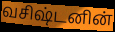
வசிஷ்டனின்